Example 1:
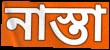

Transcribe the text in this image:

নাস্তা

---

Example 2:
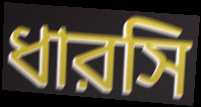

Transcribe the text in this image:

ধারসি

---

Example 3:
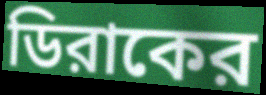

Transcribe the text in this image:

ডিরাকের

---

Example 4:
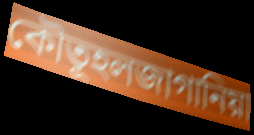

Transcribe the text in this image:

কৌতূহলজাগানিয়া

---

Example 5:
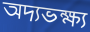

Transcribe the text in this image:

অদ্যভক্ষ্য